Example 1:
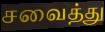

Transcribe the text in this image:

சவைத்து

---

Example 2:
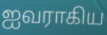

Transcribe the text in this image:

ஐவராகிய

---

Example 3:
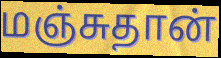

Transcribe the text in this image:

மஞ்சுதான்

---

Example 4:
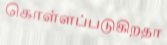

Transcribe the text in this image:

கொள்ளப்படுகிறதா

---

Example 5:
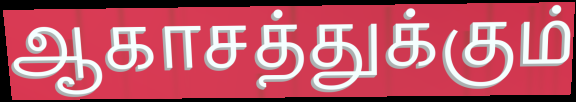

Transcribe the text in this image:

ஆகாசத்துக்கும்